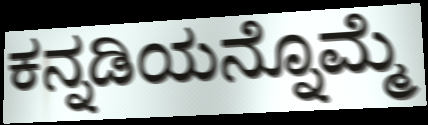
ಕನ್ನಡಿಯನ್ನೊಮ್ಮೆ